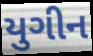
યુગીન